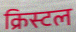
क्रिस्टल